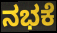
ನಭಕೆ